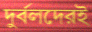
দুর্বলদেরই